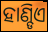
ହାଣ୍ଡିଏ